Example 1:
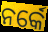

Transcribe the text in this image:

ନର୍କେ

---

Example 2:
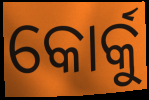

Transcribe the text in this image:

କୋର୍କୁ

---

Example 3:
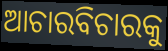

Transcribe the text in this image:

ଆଚାରବିଚାରକୁ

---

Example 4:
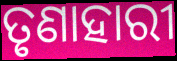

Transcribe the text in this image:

ତୃଣାହାରୀ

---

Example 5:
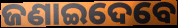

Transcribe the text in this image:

ଜଣାଇଦେବେ